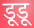
डूडू